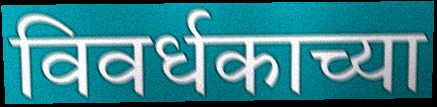
विवर्धकाच्या